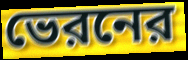
ভেরনের